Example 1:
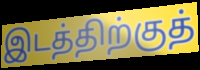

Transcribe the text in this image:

இடத்திற்குத்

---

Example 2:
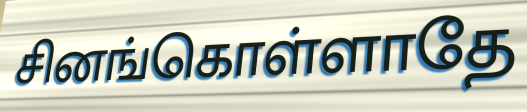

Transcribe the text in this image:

சினங்கொள்ளாதே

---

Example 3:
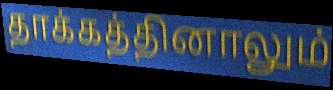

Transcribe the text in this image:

தாக்கத்தினாலும்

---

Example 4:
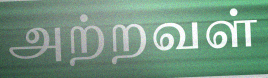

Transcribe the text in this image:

அற்றவள்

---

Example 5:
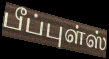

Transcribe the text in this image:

பீப்புள்ஸ்